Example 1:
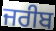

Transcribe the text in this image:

ਜਰੀਬ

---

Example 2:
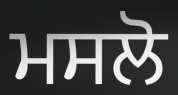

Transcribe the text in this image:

ਮਸਲੋ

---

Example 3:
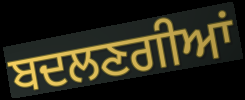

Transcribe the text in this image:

ਬਦਲਣਗੀਆਂ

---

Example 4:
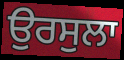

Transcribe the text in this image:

ਉਰਸੁਲਾ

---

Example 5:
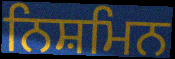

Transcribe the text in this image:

ਨਿਸ਼ਮਿਨ